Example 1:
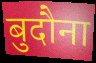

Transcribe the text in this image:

बुदौना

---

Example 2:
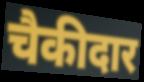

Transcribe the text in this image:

चैकीदार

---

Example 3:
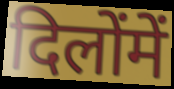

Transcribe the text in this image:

दिलोंमें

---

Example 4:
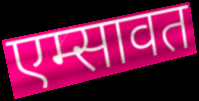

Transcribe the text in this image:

एम्सावत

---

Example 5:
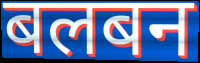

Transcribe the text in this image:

बलबन